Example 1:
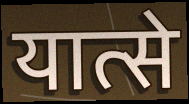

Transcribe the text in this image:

यात्से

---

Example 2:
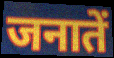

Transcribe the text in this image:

जनातें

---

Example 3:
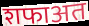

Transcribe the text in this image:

शफाअत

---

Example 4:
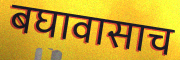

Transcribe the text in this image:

बघावासाच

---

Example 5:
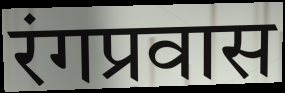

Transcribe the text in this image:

रंगप्रवास